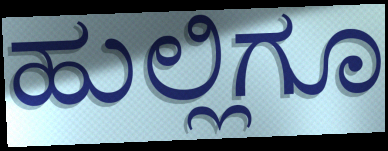
ಹುಲ್ಲಿಗೂ